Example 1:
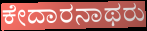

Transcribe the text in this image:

ಕೇದಾರನಾಥರು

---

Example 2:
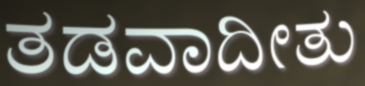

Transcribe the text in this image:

ತಡವಾದೀತು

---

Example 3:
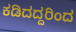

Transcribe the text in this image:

ಕಡಿದದ್ದರಿಂದ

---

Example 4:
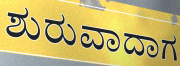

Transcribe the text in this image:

ಶುರುವಾದಾಗ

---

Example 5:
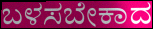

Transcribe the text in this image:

ಬಳಸಬೇಕಾದ